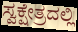
ಸ್ವಕ್ಷೇತ್ರದಲ್ಲಿ